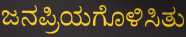
ಜನಪ್ರಿಯಗೊಳಿಸಿತು